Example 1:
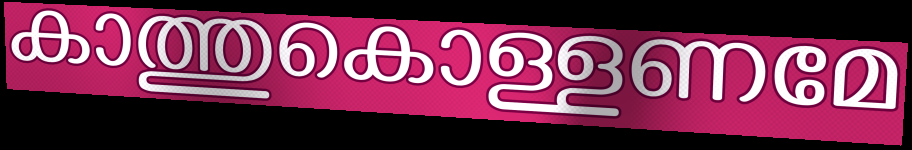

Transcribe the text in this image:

കാത്തുകൊള്ളണമേ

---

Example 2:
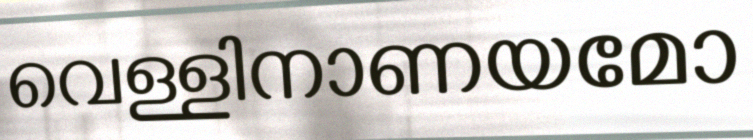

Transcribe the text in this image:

വെള്ളിനാണയമോ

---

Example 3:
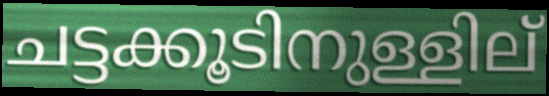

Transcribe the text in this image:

ചട്ടക്കൂടിനുള്ളില്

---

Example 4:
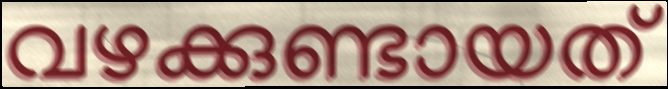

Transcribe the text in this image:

വഴക്കുണ്ടായത്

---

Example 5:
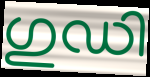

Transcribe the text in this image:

ഗുഡി